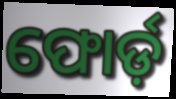
ଫୋର୍ଡ଼